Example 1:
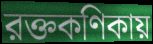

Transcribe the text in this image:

রক্তকণিকায়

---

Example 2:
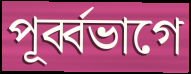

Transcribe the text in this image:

পূর্ব্বভাগে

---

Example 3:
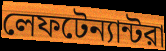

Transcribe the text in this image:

লেফটেন্যান্টরা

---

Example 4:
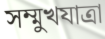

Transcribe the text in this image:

সম্মুখযাত্রা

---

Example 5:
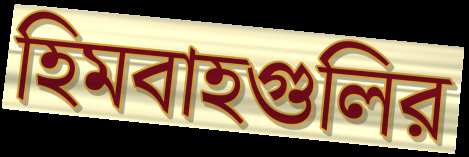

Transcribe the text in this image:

হিমবাহগুলির